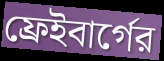
ফ্রেইবার্গের